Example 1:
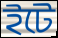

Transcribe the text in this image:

ইটে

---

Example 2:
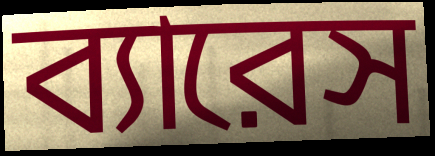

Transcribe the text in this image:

ব্যারেস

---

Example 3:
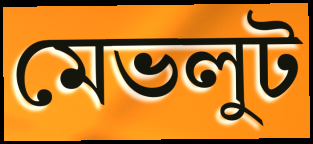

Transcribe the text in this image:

মেভলুট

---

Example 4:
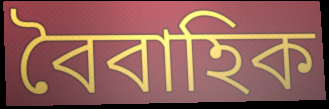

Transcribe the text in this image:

বৈবাহিক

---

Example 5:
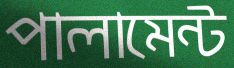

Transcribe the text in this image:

পালামেন্ট